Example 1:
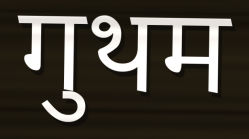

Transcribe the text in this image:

गुथम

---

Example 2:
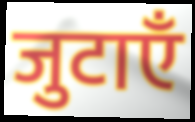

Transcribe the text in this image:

जुटाएँ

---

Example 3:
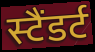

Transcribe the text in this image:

स्टैंडर्ट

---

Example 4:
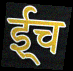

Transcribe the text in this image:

ई्च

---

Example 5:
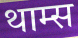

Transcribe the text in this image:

थाम्स